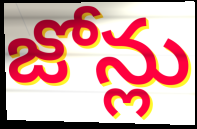
జోన్లు